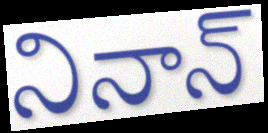
నినాన్